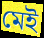
মেই